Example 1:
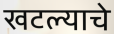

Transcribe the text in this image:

खटल्याचे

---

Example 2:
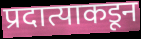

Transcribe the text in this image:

प्रदात्याकडून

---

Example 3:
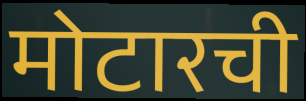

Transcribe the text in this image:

मोटारची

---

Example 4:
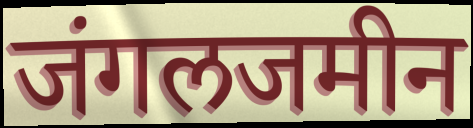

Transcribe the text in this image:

जंगलजमीन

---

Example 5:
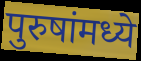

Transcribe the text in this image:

पुरुषांमध्ये